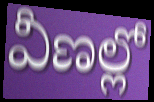
వీణల్లో